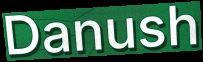
Danush